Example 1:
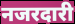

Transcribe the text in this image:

नजरदारी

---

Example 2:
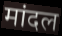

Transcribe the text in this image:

मांदल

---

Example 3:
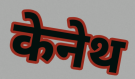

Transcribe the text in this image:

केनेथ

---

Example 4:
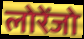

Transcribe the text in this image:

लोरेंजो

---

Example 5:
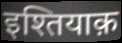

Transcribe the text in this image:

इश्तियाक़